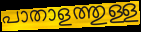
പാതാളത്തുള്ള